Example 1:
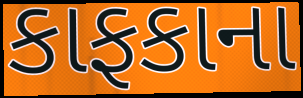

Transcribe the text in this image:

કાફકાના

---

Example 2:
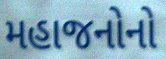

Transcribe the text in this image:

મહાજનોનો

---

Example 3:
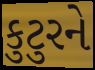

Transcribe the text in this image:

કુટુરને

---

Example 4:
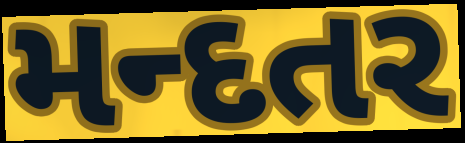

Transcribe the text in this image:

મન્દતર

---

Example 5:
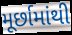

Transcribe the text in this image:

મૂર્છામાંથી